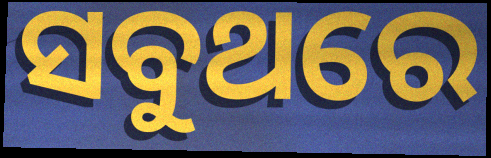
ସବୁଥରେ